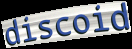
discoid